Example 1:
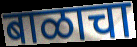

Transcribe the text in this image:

बाळाचा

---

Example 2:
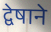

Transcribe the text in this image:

द्वेषाने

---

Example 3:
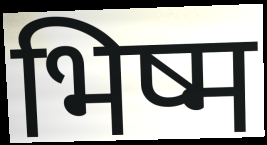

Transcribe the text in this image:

भिष्म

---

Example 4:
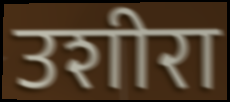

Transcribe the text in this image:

उशीरा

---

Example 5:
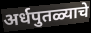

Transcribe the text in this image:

अर्धपुतळ्याचे